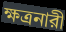
ক্ষত্রনারী